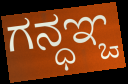
ಗನ್ಧಞ್ಚ